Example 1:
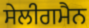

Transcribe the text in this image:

ਸੇਲੀਗਮੈਨ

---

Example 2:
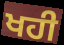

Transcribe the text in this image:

ਖਹੀ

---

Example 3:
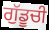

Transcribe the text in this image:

ਗੁੱਡੂਚੀ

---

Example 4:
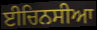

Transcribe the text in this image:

ਈਚਿਨਸੀਆ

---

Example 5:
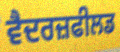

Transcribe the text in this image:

ਵੈਦਰਜ਼ਫੀਲਡ